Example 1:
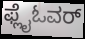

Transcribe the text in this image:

ಫ್ಲೈಓವರ್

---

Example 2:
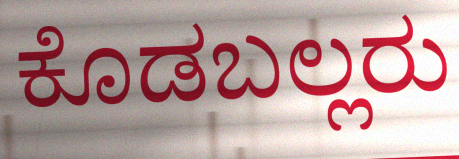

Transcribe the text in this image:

ಕೊಡಬಲ್ಲರು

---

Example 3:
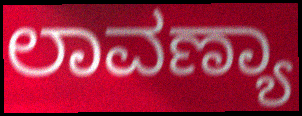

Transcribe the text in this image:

ಲಾವಣ್ಯಾ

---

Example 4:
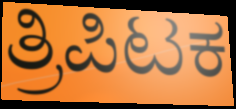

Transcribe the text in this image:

ತ್ರಿಪಿಟಕ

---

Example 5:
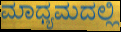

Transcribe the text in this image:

ಮಾಧ್ಯಮದಲ್ಲಿ